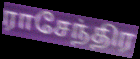
ராசேந்திர